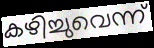
കഴിച്ചുവെന്ന്